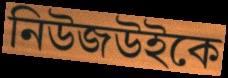
নিউজউইকে